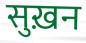
सुख़न